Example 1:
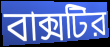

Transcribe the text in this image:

বাক্সটির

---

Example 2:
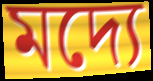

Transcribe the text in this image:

মদ্যে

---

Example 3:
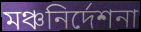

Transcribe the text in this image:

মঞ্চনির্দেশনা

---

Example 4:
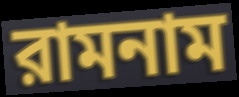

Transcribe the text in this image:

রামনাম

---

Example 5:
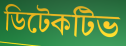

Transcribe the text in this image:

ডিটেকটিভ